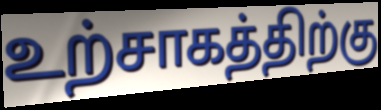
உற்சாகத்திற்கு